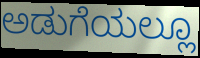
ಅಡುಗೆಯಲ್ಲೂ